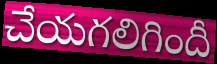
చేయగలిగిందీ